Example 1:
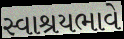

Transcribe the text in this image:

સ્વાશ્રયભાવે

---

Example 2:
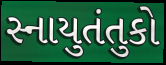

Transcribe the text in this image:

સ્નાયુતંતુકો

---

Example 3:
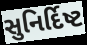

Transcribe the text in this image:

સુનિર્દિષ્ટ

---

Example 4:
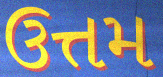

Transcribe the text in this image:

ઉત્તમ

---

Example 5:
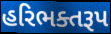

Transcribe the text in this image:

હરિભક્તરૂપ